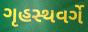
ગૃહસ્થવર્ગે